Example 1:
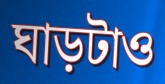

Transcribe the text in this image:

ঘাড়টাও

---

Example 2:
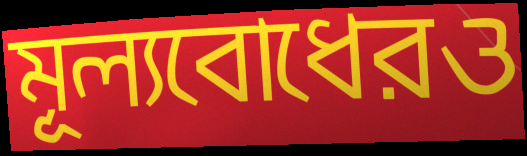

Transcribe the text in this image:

মূল্যবোধেরও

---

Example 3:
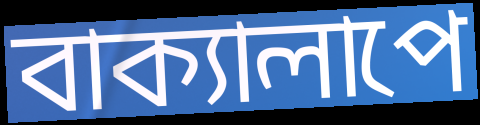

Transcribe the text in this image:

বাক্যালাপে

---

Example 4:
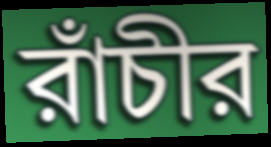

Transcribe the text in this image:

রাঁচীর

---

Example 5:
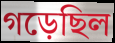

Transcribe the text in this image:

গড়েছিল